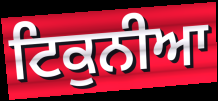
ਟਿਕੁਨੀਆ